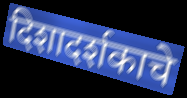
दिशादर्शकाचे